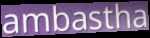
ambastha